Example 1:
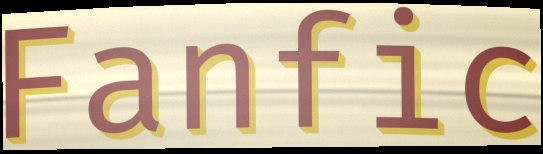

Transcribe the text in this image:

Fanfic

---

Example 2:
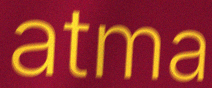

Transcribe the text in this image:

atma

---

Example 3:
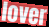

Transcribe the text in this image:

lover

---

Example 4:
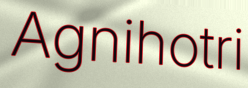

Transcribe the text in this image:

Agnihotri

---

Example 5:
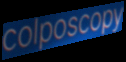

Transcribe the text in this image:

colposcopy